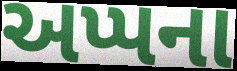
અપ્પના